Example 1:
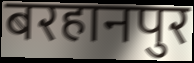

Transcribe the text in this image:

बरहानपुर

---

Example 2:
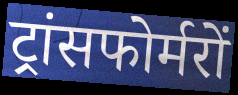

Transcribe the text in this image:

ट्रांसफोर्मरों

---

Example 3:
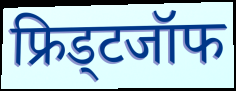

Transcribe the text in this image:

फ्रिड्टजॉफ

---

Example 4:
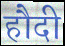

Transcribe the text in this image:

हौदी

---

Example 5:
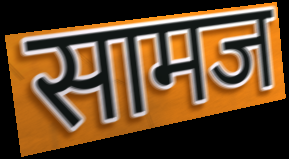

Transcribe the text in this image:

सामज